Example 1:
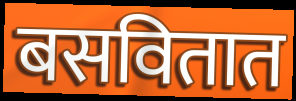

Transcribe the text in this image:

बसवितात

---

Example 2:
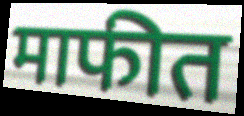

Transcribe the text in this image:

माफीत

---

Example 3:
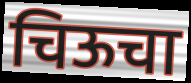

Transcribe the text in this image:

चिऊचा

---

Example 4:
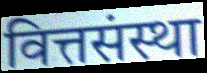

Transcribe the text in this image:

वित्तसंस्था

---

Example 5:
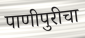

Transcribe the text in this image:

पाणीपुरीचा